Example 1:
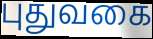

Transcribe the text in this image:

புதுவகை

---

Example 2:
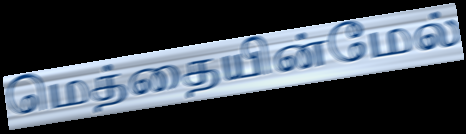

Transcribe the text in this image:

மெத்தையின்மேல்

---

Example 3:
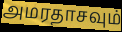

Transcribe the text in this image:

அமரதாசவும்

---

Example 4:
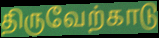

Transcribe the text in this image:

திருவேற்காடு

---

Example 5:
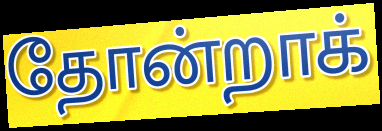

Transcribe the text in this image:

தோன்றாக்